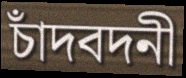
চাঁদবদনী